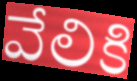
వేలికి